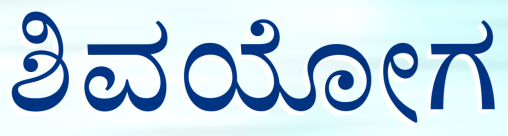
ಶಿವಯೋಗ